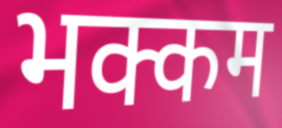
भक्कम